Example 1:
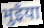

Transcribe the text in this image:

भुइँया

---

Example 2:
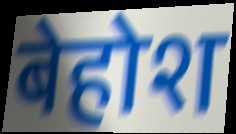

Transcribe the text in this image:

बेहोश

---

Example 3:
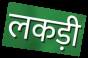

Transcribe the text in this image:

लकड़ी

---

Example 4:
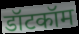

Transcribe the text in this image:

डॉटकॉम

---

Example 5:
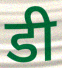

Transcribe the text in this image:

डी